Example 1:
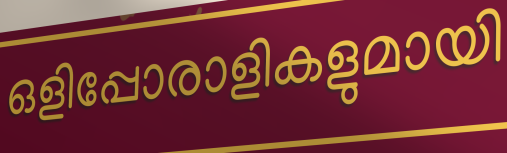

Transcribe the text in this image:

ഒളിപ്പോരാളികളുമായി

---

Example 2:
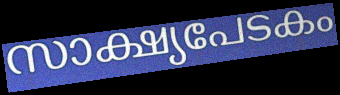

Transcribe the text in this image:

സാക്ഷ്യപേടകം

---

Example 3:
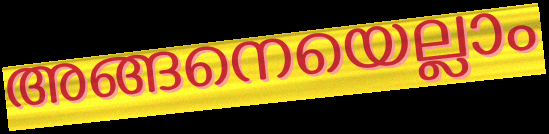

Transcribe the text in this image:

അങ്ങനെയെല്ലാം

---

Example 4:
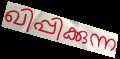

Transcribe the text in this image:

ഖിപ്പിക്കുന്ന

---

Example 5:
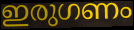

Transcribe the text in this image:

ഇരുഗണം